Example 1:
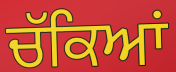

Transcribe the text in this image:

ਚੱਕਿਆਂ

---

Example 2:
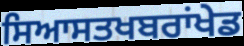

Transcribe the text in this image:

ਸਿਆਸਤਖਬਰਾਂਖੇਡ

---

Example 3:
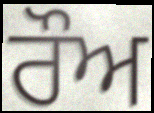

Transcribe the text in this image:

ਰੌਅ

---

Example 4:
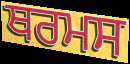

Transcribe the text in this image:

ਥਰਮਸ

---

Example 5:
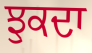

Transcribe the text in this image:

ਝੁਕਦਾ